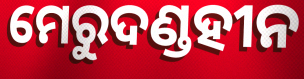
ମେରୁଦଣ୍ଡହୀନ